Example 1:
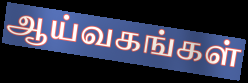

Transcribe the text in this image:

ஆய்வகங்கள்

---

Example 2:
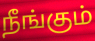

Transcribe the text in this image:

நீங்கும்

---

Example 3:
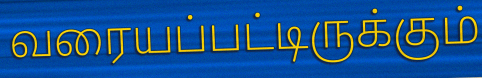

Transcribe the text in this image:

வரையப்பட்டிருக்கும்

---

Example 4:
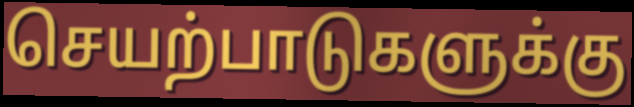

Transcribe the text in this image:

செயற்பாடுகளுக்கு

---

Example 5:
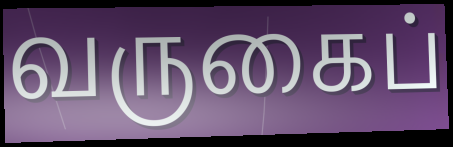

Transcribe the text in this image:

வருகைப்